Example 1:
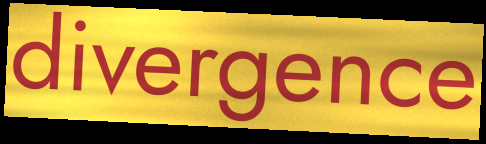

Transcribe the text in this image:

divergence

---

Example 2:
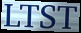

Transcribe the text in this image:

LTST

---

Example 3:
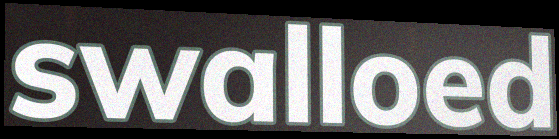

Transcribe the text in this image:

swalloed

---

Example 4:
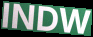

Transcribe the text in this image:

INDW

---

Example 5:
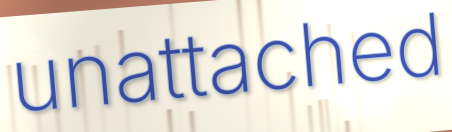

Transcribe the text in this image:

unattached